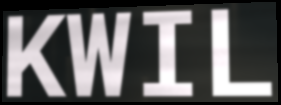
KWIL